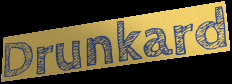
Drunkard